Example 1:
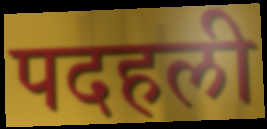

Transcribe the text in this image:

पदहली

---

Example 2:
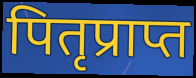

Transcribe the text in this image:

पितृप्राप्त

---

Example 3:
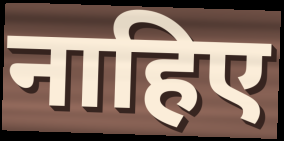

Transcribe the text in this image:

नाहिए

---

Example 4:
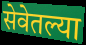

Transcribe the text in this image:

सेवेतल्या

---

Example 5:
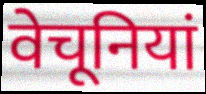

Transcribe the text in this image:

वेचूनियां